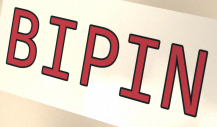
BIPIN